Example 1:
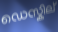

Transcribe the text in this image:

ഡെസ്കില്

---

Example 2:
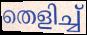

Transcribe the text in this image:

തെളിച്ച്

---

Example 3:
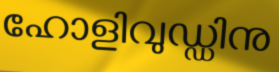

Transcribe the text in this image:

ഹോളിവുഡ്ഡിനു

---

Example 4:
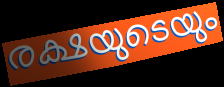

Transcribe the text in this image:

രക്ഷയുടെയും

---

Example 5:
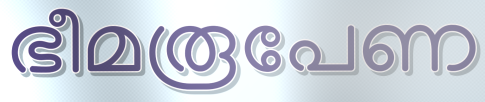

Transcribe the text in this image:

ഭീമരൂപേണ